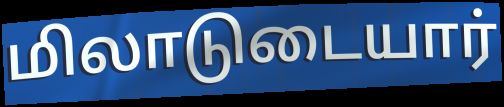
மிலாடுடையார்